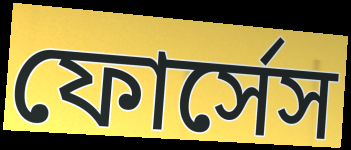
ফোর্সেস